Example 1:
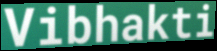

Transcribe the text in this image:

Vibhakti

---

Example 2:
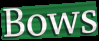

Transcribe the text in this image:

Bows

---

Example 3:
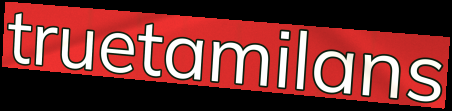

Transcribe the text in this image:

truetamilans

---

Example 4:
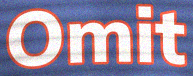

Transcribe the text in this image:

Omit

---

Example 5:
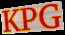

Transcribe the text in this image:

KPG